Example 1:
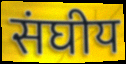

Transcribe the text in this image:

संघीय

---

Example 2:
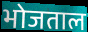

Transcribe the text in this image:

भोजताल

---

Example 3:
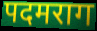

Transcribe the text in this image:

पदमराग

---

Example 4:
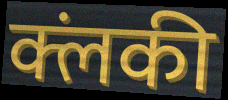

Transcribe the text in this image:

क्लंकी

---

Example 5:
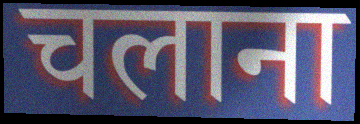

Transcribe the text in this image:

चलाना